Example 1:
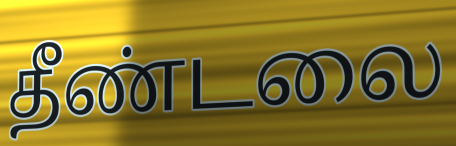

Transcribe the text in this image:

தீண்டலை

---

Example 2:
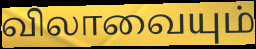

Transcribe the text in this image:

விலாவையும்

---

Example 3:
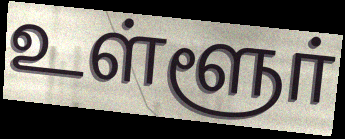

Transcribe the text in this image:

உள்ளூர்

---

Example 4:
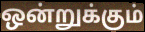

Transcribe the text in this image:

ஒன்றுக்கும்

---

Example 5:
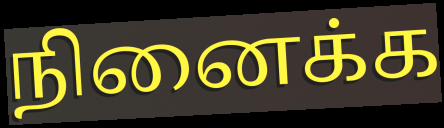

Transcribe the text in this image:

நினைக்க